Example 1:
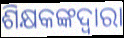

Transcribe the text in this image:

ଶିକ୍ଷକଙ୍କଦ୍ଵାରା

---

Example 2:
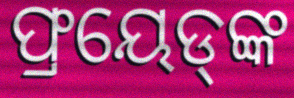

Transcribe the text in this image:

ଫ୍ରୟେଡ୍‍ଙ୍କ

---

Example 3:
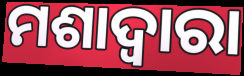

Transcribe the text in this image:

ମଶାଦ୍ୱାରା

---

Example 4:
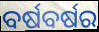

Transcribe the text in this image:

ବର୍ଷବର୍ଷର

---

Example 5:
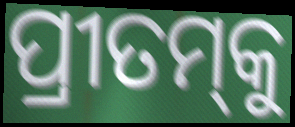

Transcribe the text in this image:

ପ୍ରୀତମ୍‌କୁ